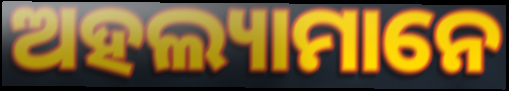
ଅହଲ୍ୟାମାନେ